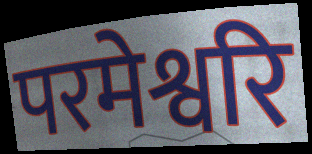
परमेश्वरि